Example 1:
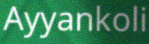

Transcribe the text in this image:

Ayyankoli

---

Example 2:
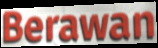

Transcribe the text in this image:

Berawan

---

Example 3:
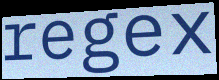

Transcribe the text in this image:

regex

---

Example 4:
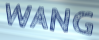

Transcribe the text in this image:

WANG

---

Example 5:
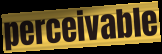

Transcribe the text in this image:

perceivable